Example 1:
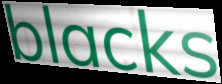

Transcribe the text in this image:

blacks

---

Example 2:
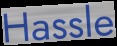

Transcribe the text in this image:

Hassle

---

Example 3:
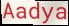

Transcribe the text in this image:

Aadya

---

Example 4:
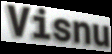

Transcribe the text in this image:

Visnu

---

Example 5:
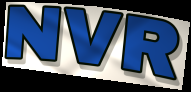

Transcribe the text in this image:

NVR